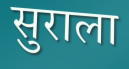
सुराला